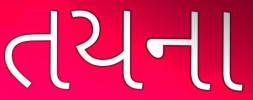
તયના